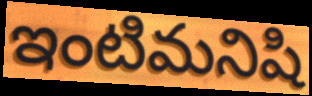
ఇంటిమనిషి